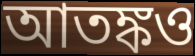
আতঙ্কও